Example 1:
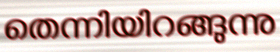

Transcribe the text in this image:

തെന്നിയിറങ്ങുന്നു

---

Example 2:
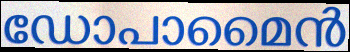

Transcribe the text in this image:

ഡോപാമൈൻ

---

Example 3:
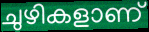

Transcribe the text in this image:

ചുഴികളാണ്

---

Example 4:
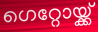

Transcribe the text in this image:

ഗെറ്റോയ്ക്ക്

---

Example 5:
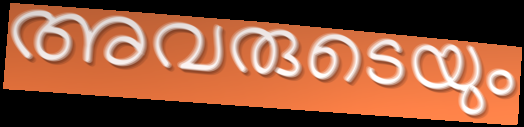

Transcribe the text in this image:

അവരുടെയും